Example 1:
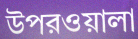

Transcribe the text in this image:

উপরওয়ালা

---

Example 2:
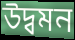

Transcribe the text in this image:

উদ্বমন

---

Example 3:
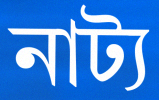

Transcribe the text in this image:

নাট্য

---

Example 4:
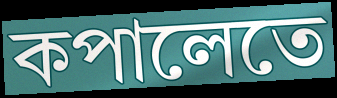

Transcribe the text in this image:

কপালেতে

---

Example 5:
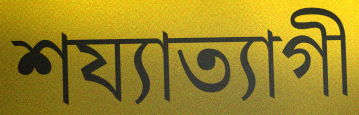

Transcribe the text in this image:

শয্যাত্যাগী